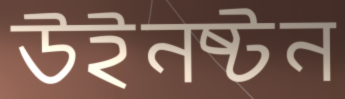
উইনষ্টন